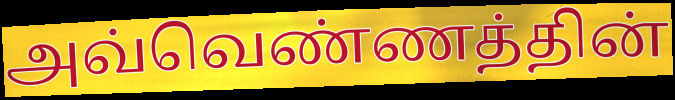
அவ்வெண்ணத்தின்